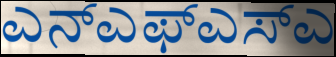
ಎನ್ಎಫ್ಎಸ್ಎ